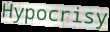
Hypocrisy